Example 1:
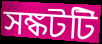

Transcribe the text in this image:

সঙ্কটটি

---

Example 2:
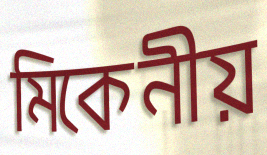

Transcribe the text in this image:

মিকেনীয়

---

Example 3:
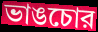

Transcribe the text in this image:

ভাঙচোর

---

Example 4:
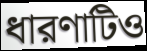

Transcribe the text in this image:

ধারণাটিও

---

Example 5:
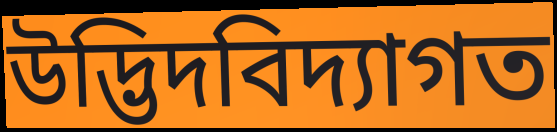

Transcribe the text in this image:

উদ্ভিদবিদ্যাগত